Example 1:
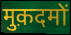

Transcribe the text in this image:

मुक़दमों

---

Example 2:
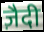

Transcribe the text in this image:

ज़ैदी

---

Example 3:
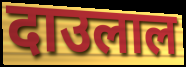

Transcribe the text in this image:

दाउलाल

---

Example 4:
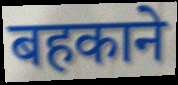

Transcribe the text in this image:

बहकाने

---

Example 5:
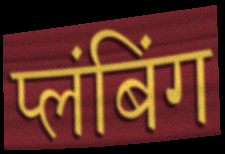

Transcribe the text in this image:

प्लंबिंग